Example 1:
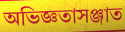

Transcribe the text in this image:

অভিজ্ঞতাসঞ্জাত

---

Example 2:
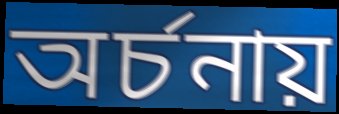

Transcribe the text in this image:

অর্চনায়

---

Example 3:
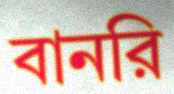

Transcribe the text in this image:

বানরি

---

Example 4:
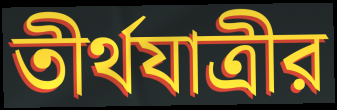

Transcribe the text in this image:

তীর্থযাত্রীর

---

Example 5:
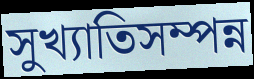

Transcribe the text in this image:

সুখ্যাতিসম্পন্ন